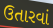
ઉતારવાં